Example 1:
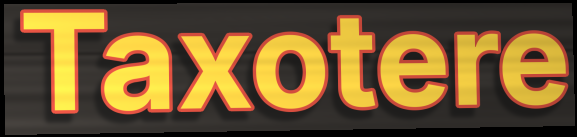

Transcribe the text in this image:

Taxotere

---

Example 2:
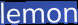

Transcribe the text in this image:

lemon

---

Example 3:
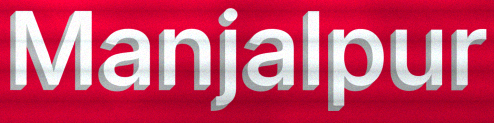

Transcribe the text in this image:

Manjalpur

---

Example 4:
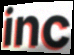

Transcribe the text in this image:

inc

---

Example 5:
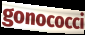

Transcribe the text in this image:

gonococci